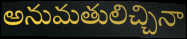
అనుమతులిచ్చినా